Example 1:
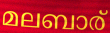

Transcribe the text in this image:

മലബാര്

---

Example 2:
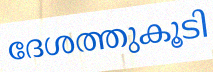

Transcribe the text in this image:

ദേശത്തുകൂടി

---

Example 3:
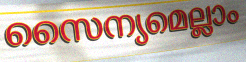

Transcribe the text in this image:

സൈന്യമെല്ലാം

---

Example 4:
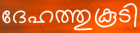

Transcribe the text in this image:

ദേഹത്തുകൂടി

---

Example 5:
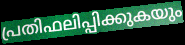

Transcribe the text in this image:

പ്രതിഫലിപ്പിക്കുകയും